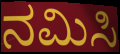
ನಮಿಸಿ